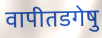
वापीतडगेषु